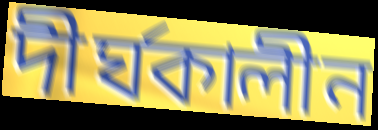
দীৰ্ঘকালীন